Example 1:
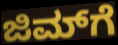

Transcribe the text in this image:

ಜಿಮ್‌ಗೆ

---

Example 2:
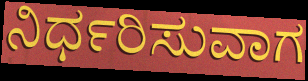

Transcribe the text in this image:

ನಿರ್ಧರಿಸುವಾಗ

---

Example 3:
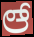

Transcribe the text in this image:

ಆ್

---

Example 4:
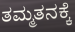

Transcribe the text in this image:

ತಮ್ಮತನಕ್ಕೆ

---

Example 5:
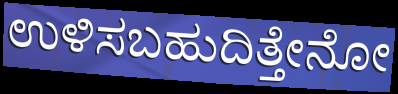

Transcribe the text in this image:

ಉಳಿಸಬಹುದಿತ್ತೇನೋ